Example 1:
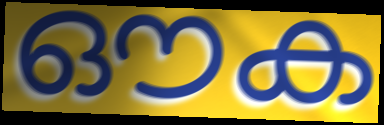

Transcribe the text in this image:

ഔക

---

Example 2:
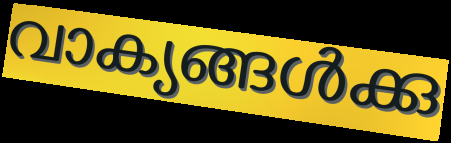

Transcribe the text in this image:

വാക്യങ്ങൾക്കു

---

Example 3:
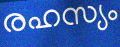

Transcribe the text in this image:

രഹസ്യം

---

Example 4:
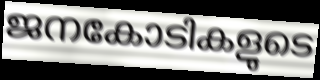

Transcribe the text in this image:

ജനകോടികളുടെ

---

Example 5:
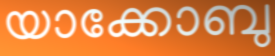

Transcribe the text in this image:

യാക്കോബു